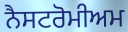
ਨੈਸਟਰੋਮੀਅਮ